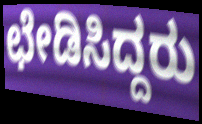
ಛೇಡಿಸಿದ್ದರು